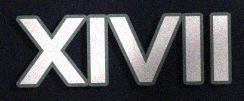
XIVII